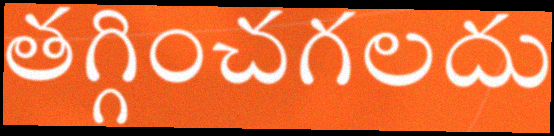
తగ్గించగలదు